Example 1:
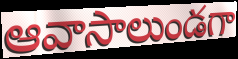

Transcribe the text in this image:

ఆవాసాలుండగా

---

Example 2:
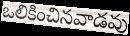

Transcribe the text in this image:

ఒలికించినవాడవు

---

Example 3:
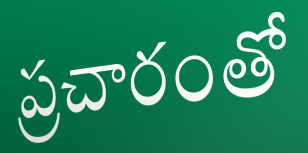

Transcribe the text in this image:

ప్రచారంతో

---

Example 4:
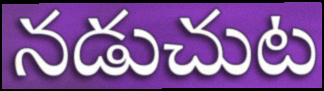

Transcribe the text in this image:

నడుచుట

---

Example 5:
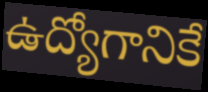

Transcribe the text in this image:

ఉద్యోగానికే